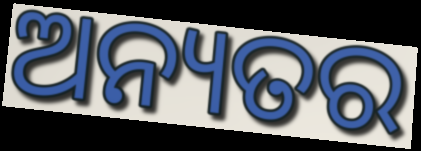
ଅନ୍ୟତର